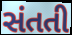
સંતતી